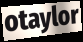
otaylor